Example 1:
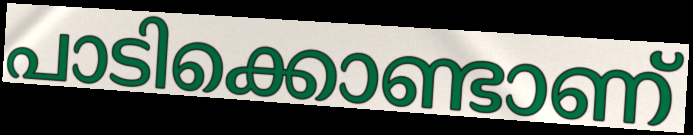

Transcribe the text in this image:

പാടിക്കൊണ്ടാണ്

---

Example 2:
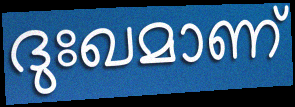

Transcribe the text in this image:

ദുഃഖമാണ്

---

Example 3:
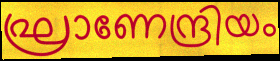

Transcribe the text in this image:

ഘ്രാണേന്ദ്രിയം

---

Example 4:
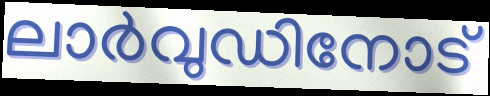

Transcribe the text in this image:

ലാർവുഡിനോട്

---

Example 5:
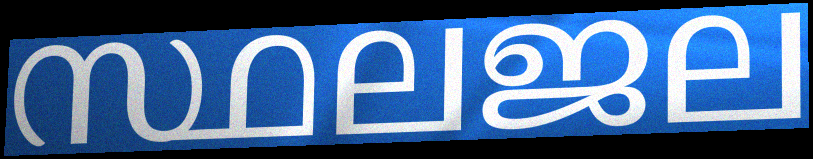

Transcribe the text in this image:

സ്ഥലജല